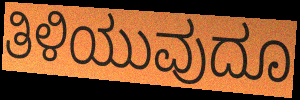
ತಿಳಿಯುವುದೂ